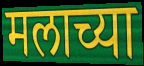
मलाच्या